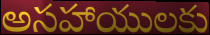
అసహాయులకు